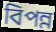
বিপন্ন